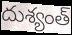
దుశ్యంత్